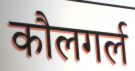
कौलगर्ल